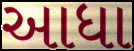
આધા